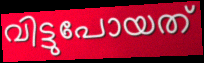
വിട്ടുപോയത്